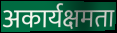
अकार्यक्षमता